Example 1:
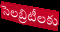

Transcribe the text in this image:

సెలబ్రిటీలకు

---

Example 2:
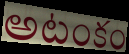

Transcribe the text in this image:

అటంకం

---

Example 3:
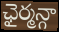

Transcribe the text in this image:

ఛైర్మన్గా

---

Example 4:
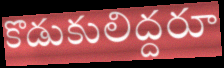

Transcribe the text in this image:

కొడుకులిద్దరూ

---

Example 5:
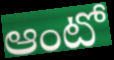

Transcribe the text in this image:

ఆంటో